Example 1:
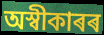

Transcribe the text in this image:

অস্বীকাৰৰ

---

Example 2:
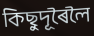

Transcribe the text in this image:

কিছুদূৰৈলৈ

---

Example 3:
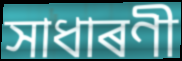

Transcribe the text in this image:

সাধাৰণী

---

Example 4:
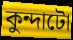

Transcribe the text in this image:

কুন্দাটো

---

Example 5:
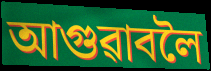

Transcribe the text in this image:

আগুৱাবলৈ